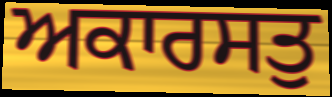
ਅਕਾਰਸਤੁ